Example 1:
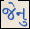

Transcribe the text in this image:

જેનુ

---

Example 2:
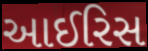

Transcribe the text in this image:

આઈરિસ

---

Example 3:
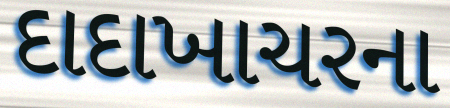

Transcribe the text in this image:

દાદાખાચરના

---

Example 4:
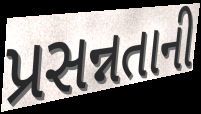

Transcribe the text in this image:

પ્રસન્નતાની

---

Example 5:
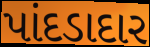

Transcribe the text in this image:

પાંદડાદાર